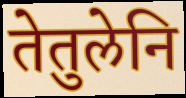
तेतुलेनि